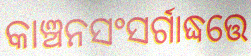
କାଞ୍ଚନସଂସର୍ଗାଦ୍ଧତ୍ତେ